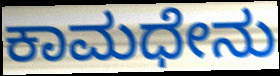
ಕಾಮಧೇನು